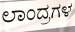
ಲಾಂದ್ರಗಳ